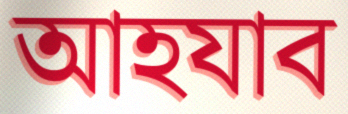
আহযাব